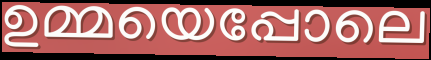
ഉമ്മയെപ്പോലെ